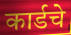
कार्डचे